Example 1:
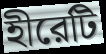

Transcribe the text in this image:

হীরেটি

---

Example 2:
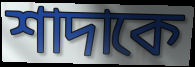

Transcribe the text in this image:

শাদাকে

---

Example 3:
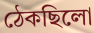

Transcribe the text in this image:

ঠেকছিলো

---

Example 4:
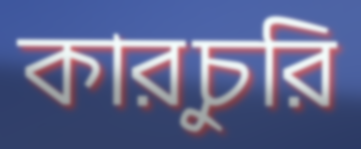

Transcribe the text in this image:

কারচুরি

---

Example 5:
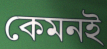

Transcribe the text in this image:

কেমনই